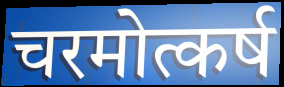
चरमोत्कर्ष